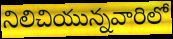
నిలిచియున్నవారిలో